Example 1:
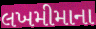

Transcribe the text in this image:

લખમીમાના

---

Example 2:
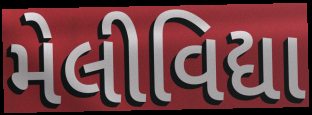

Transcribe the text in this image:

મેલીવિદ્યા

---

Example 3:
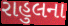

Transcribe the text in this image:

રાહુલના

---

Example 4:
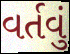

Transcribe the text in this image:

વર્તવું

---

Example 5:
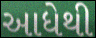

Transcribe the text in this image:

આધેથી